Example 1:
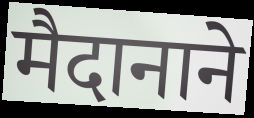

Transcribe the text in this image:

मैदानाने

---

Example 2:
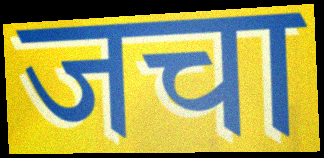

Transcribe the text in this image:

जचा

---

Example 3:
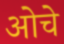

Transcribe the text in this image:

ओचे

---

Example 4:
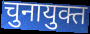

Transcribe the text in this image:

चुनायुक्त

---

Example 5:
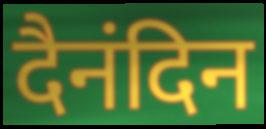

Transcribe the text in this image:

दैनंदिन